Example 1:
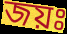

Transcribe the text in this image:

জয়ঃ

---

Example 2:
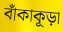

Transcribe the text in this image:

বাঁকাকূড়া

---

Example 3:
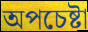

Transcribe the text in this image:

অপচেষ্টা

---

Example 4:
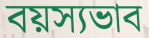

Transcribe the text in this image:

বয়স্যভাব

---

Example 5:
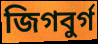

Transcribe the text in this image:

জিগবুর্গ